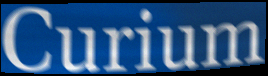
Curium